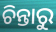
ଚିନ୍ତାରୁ